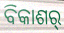
ବିକାଶର୍